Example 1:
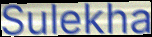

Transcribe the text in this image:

Sulekha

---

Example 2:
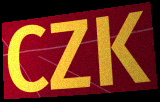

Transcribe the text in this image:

CZK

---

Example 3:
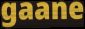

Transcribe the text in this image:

gaane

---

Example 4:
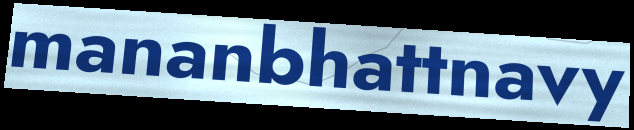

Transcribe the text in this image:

mananbhattnavy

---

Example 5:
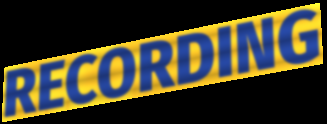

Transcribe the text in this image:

RECORDING